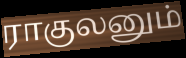
ராகுலனும்